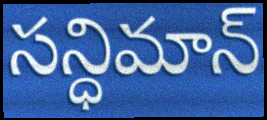
సన్ధిమాన్